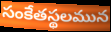
సంకేతస్థలమున